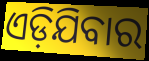
ଏଡ଼ିଯିବାର